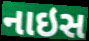
નાઇસ